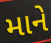
માને